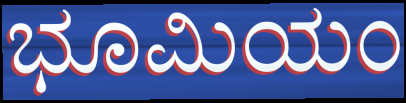
ಭೂಮಿಯಂ